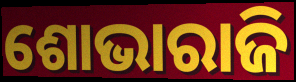
ଶୋଭାରାଜି